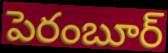
పెరంబూర్